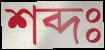
শব্দঃ